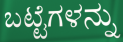
ಬಟ್ಟೆಗಳನ್ನು